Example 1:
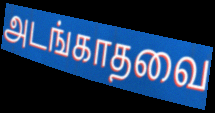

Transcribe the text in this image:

அடங்காதவை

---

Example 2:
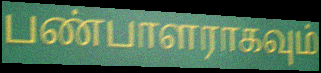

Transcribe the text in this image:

பண்பாளராகவும்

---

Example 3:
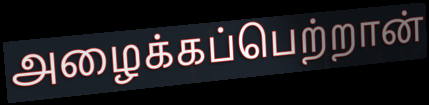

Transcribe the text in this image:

அழைக்கப்பெற்றான்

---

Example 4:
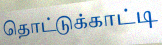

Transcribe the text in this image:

தொட்டுக்காட்டி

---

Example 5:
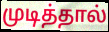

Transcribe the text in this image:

முடித்தால்